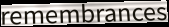
remembrances